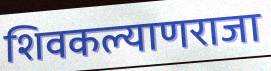
शिवकल्याणराजा